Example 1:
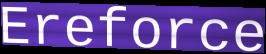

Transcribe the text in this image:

Ereforce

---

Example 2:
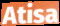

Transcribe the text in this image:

Atisa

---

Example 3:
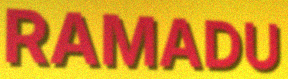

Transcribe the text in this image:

RAMADU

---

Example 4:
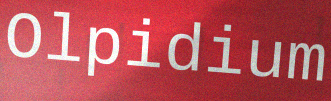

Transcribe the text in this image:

Olpidium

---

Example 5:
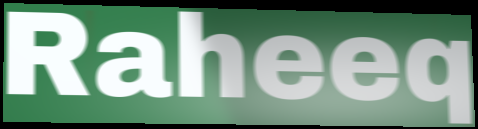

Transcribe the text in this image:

Raheeq